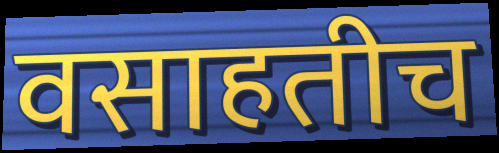
वसाहतीच